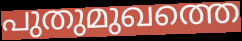
പുതുമുഖത്തെ